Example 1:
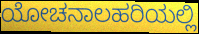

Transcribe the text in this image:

ಯೋಚನಾಲಹರಿಯಲ್ಲಿ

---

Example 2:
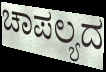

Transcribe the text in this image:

ಚಾಪಲ್ಯದ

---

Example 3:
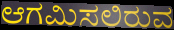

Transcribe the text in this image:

ಆಗಮಿಸಲಿರುವ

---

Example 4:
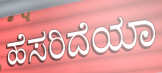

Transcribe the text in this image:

ಹೆಸರಿದೆಯಾ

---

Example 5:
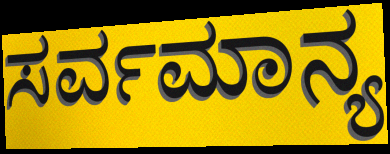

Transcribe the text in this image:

ಸರ್ವಮಾನ್ಯ